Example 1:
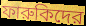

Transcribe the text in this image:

ফারুকিদের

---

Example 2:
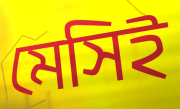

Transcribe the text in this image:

মেসিই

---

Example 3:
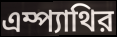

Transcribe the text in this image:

এম্প্যাথির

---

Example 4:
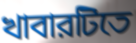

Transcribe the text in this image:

খাবারটিতে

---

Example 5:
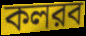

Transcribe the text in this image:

কলরব